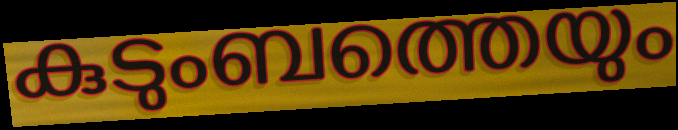
കുടുംബത്തെയും